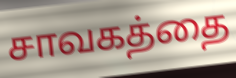
சாவகத்தை